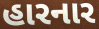
હારનાર